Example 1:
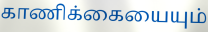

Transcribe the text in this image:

காணிக்கையையும்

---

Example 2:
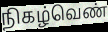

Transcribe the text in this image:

நிகழ்வெண்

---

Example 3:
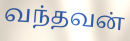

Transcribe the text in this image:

வந்தவன்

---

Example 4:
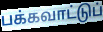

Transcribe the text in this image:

பக்கவாட்டுப்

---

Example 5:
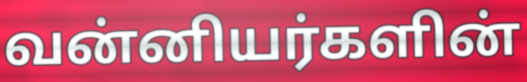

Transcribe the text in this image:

வன்னியர்களின்